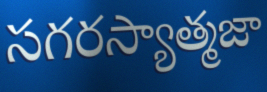
సగరస్యాత్మజా